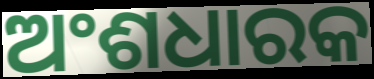
ଅଂଶଧାରକ